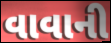
વાવાની